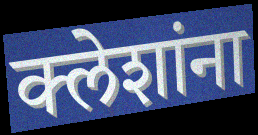
क्लेशांना